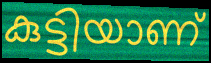
കുട്ടിയാണ്